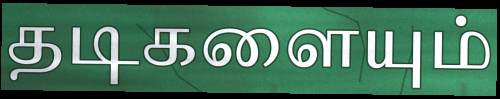
தடிகளையும்